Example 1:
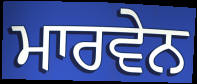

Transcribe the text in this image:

ਮਾਰਵੇਨ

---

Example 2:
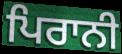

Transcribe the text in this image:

ਪਿਰਾਨੀ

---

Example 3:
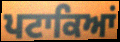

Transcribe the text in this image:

ਪਟਾਕਿਆਂ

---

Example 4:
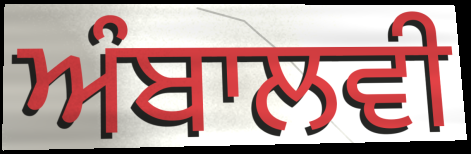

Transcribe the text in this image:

ਅੰਬਾਲਵੀ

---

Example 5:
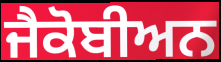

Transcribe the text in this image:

ਜੈਕੋਬੀਅਨ